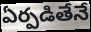
ఏర్పడితేనే